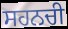
ਸਹਨਚੀ